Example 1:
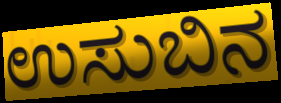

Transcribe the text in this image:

ಉಸುಬಿನ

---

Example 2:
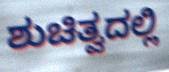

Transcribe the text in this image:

ಶುಚಿತ್ವದಲ್ಲಿ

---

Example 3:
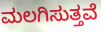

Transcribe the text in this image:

ಮಲಗಿಸುತ್ತವೆ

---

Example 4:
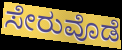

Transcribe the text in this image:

ಸೇರುವೊಡೆ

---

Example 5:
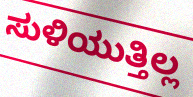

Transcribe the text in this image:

ಸುಳಿಯುತ್ತಿಲ್ಲ